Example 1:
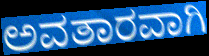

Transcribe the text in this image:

ಅವತಾರವಾಗಿ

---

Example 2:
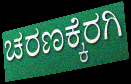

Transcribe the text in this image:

ಚರಣಕ್ಕೆರಗಿ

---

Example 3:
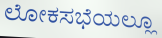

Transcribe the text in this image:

ಲೋಕಸಭೆಯಲ್ಲೂ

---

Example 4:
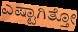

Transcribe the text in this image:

ಎಷ್ಟಾಗಿತ್ತೋ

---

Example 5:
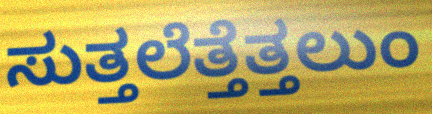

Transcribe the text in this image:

ಸುತ್ತಲೆತ್ತೆತ್ತಲುಂ